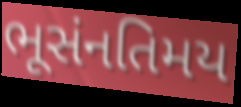
ભૂસંનતિમય